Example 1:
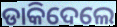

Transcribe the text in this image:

ଡାକିଦେଲେ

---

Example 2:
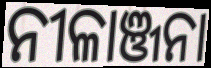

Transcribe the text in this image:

ନୀଳାଞ୍ଜନା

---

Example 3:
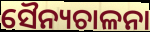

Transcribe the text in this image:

ସୈନ୍ୟଚାଳନା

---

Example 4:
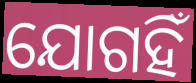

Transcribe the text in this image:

ଯୋଗହିଁ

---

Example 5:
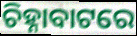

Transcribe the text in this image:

ଚିହ୍ନାବାଟରେ